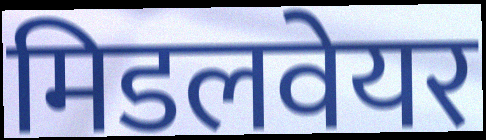
मिडलवेयर